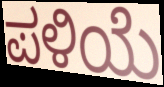
ಪಳಿಯೆ